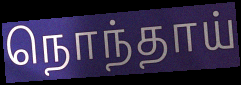
நொந்தாய்